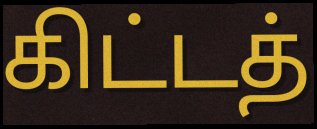
கிட்டத்